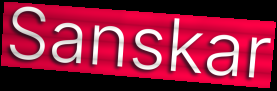
Sanskar